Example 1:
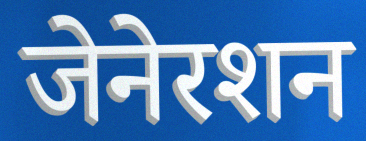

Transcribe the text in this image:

जेनेरशन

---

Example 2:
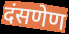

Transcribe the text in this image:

दंसणेण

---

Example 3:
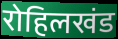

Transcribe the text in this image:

रोहिलखंड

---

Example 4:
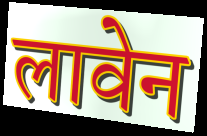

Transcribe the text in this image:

लावेन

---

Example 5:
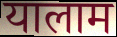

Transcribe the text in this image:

यालाम